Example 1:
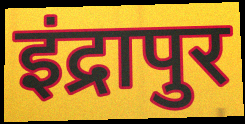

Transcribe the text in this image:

इंद्रापुर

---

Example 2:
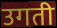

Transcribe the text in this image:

उगती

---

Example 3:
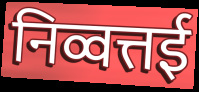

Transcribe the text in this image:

निव्वत्तई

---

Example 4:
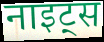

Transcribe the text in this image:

नाइट्स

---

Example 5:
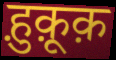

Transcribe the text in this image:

ह़ुक़ूक़